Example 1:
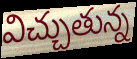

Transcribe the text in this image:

విచ్చుతున్న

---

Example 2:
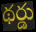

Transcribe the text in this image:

థర్డు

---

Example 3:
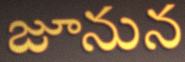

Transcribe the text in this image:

జూనున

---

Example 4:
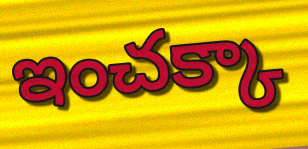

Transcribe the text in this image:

ఇంచక్కా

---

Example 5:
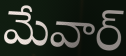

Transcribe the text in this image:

మేవార్